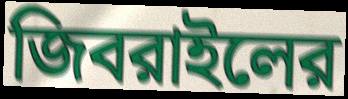
জিবরাইলের